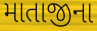
માતાજીના